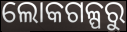
ଲୋକଗଳ୍ପରୁ